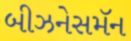
બીઝનેસમૅન